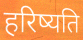
हरिष्यति